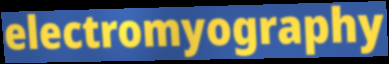
electromyography